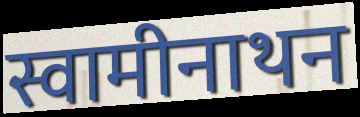
स्वामीनाथन